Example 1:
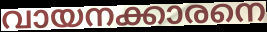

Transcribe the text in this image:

വായനക്കാരനെ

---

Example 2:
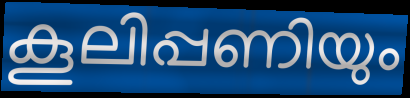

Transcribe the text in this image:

കൂലിപ്പണിയും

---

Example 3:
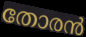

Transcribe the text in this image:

തോരൻ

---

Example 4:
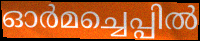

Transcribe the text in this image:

ഓർമച്ചെപ്പിൽ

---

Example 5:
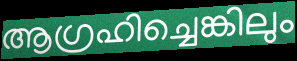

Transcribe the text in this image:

ആഗ്രഹിച്ചെങ്കിലും